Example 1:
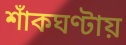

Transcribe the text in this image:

শাঁকঘণ্টায়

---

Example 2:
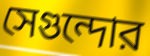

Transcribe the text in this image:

সেগুন্দোর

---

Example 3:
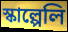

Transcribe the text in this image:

স্কাল্পেলি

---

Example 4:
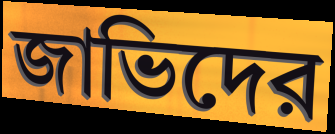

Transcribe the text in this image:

জাভিদের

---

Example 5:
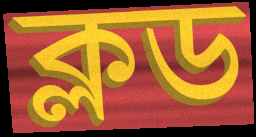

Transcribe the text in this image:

ক্লড